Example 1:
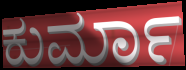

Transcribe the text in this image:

ಕುರ್ಮಾ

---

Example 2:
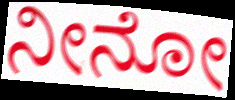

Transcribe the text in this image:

ನೀನೋ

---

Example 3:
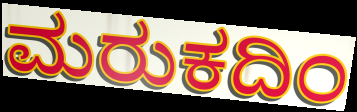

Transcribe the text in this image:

ಮರುಕದಿಂ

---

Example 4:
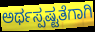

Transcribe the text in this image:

ಅರ್ಥಸ್ಪಷ್ಟತೆಗಾಗಿ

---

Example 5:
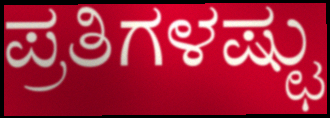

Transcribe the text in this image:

ಪ್ರತಿಗಳಷ್ಟು